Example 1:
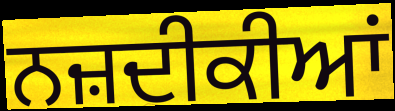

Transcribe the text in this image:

ਨਜ਼ਦੀਕੀਆਂ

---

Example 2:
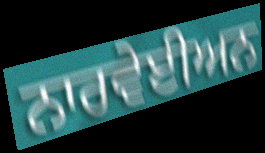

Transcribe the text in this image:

ਨਾਰਵੇਈਅਨ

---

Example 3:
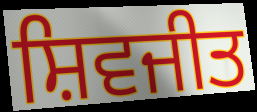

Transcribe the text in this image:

ਸ਼ਿਵਜੀਤ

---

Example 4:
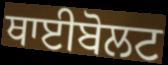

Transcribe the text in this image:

ਥਾਈਬੋਲਟ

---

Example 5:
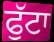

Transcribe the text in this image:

ਫੁੱਟਾ